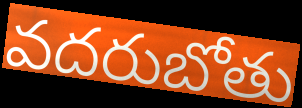
వదరుబోతు